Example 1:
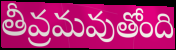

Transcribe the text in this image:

తీవ్రమవుతోంది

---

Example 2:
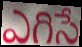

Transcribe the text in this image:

ఎగిసే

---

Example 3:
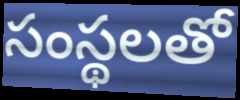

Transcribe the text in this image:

సంస్థలతో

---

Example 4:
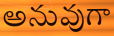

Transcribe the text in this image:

అనువుగా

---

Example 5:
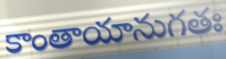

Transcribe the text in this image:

కాంతాయానుగతః